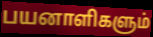
பயனாளிகளும்